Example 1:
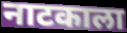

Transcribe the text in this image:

नाटकाला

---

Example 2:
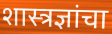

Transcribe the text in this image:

शास्त्रज्ञांचा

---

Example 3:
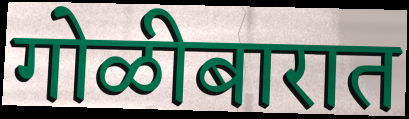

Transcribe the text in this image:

गोळीबारात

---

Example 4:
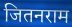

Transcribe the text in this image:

जितनराम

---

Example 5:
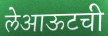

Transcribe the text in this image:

लेआऊटची